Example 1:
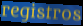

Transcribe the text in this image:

registros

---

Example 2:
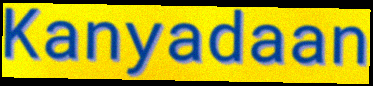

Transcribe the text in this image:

Kanyadaan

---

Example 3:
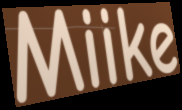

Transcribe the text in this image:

Miike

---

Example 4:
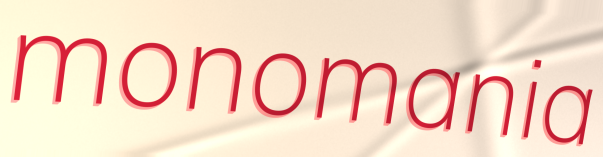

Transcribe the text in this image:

monomania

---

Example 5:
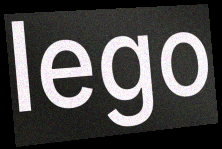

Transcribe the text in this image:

lego